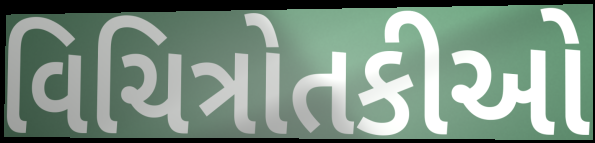
વિચિત્રોતકીઓ